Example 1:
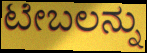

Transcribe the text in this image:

ಟೇಬಲನ್ನು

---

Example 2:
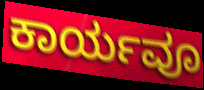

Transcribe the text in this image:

ಕಾರ್ಯವೂ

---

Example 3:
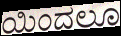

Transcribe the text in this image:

ಯಿಂದಲೂ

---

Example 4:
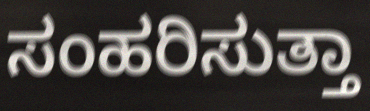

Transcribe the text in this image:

ಸಂಹರಿಸುತ್ತಾ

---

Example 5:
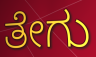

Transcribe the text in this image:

ತೇಗು